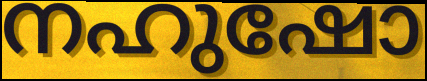
നഹുഷോ